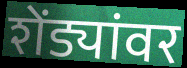
शेंड्यांवर